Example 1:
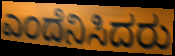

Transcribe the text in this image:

ಎಂದೆನಿಸಿದರು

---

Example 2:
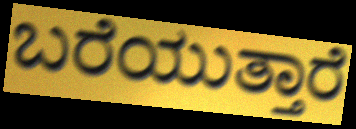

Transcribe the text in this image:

ಬರೆಯುತ್ತಾರೆ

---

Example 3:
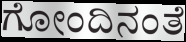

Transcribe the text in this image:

ಗೋಂದಿನಂತೆ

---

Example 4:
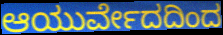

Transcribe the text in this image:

ಆಯುರ್ವೇದದಿಂದ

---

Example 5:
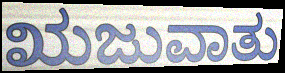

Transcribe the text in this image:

ಋಜುವಾತು